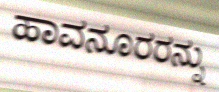
ಹಾವನೂರರನ್ನು